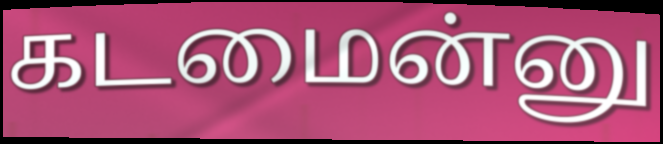
கடமைன்னு